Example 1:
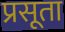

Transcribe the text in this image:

प्रसूता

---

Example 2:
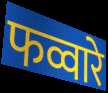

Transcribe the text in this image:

फव्वारे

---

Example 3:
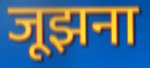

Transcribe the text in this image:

जूझना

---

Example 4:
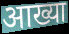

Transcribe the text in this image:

आख्या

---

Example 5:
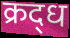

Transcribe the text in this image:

क्रद्ध